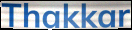
Thakkar